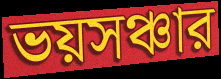
ভয়সঞ্চার